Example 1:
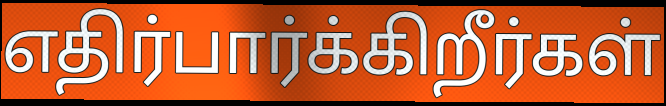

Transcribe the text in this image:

எதிர்பார்க்கிறீர்கள்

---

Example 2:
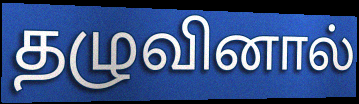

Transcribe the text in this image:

தழுவினால்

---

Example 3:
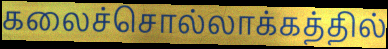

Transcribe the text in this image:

கலைச்சொல்லாக்கத்தில்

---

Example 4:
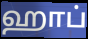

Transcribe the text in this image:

ஹாப்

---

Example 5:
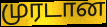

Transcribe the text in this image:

முரடான